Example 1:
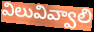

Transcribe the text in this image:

విలువివ్వాలి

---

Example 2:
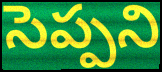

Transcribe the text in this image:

సెప్పని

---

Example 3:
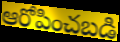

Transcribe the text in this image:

ఆరోపించబడి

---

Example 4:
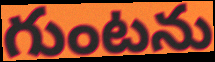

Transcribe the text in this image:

గుంటను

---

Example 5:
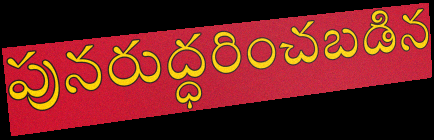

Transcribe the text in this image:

పునరుద్ధరించబడిన